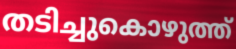
തടിച്ചുകൊഴുത്ത്